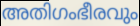
അതിഗംഭീരവും